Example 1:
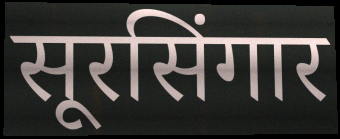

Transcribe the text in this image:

सूरसिंगार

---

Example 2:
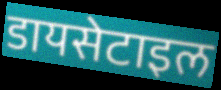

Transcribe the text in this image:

डायसेटाइल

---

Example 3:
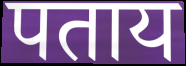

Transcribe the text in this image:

पताय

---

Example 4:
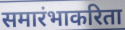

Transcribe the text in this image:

समारंभाकरिता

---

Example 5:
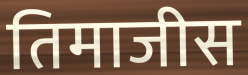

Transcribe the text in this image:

तिमाजीस